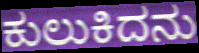
ಕುಲುಕಿದನು